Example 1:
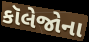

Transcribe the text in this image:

કૉલેજોના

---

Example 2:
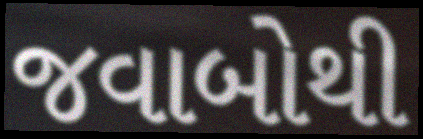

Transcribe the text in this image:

જવાબોથી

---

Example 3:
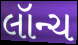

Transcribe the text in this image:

લૉન્ચ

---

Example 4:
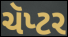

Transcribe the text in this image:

ચૅપ્ટર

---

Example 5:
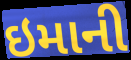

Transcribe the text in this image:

ઇમાની